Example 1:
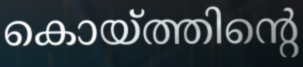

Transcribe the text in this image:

കൊയ്ത്തിന്റെ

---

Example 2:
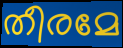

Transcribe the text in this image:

തീരമേ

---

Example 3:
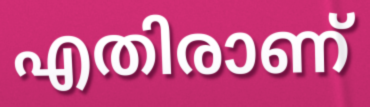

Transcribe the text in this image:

എതിരാണ്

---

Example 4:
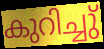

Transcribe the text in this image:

കുറിച്ചു്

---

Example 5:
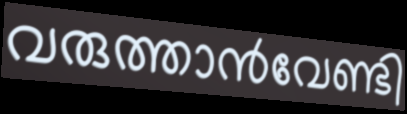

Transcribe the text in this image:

വരുത്താൻവേണ്ടി